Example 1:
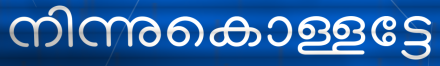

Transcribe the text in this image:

നിന്നുകൊള്ളട്ടേ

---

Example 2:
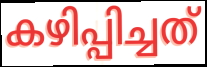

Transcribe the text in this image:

കഴിപ്പിച്ചത്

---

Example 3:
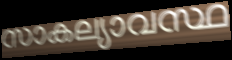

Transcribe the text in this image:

സാകല്യാവസ്ഥ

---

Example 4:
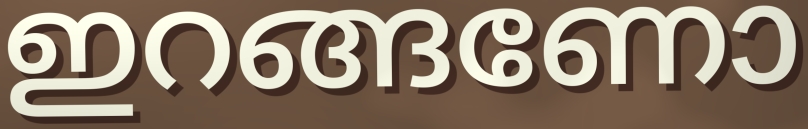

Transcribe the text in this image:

ഇറങ്ങണോ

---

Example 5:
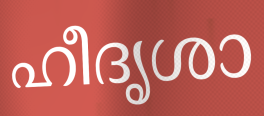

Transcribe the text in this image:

ഹീദൃശാ